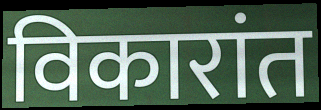
विकारांत